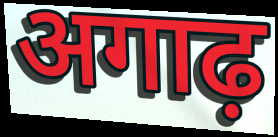
अगाढ़